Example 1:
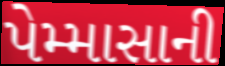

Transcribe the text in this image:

પેમ્માસાની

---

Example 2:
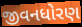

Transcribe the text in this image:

જીવનધોરણ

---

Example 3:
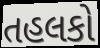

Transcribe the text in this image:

તહલકો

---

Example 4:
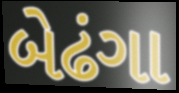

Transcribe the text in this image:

બેઢંગા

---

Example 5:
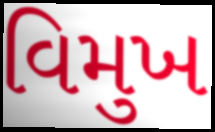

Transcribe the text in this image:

વિમુખ